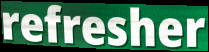
refresher